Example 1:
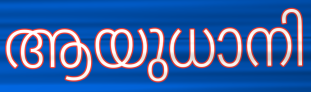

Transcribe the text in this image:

ആയുധാനി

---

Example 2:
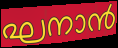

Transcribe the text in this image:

ഘനാൻ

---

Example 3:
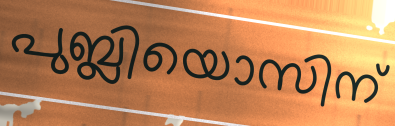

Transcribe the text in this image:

പുബ്ലിയൊസിന്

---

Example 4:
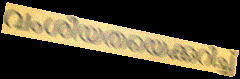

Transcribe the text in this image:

വംശീയതയെക്കുറിച്ച്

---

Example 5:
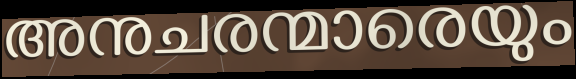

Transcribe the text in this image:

അനുചരന്മാരെയും